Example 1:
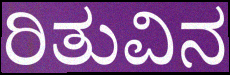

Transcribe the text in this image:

ರಿತುವಿನ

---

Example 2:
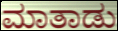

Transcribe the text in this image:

ಮಾತಾಡು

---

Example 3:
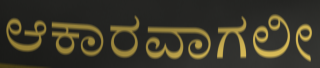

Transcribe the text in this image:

ಆಕಾರವಾಗಲೀ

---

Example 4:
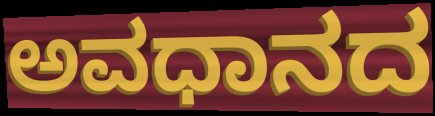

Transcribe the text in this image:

ಅವಧಾನದ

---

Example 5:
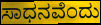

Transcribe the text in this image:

ಸಾಧನವೆಂದು